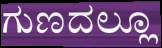
ಗುಣದಲ್ಲೂ